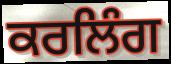
ਕਰਲਿੰਗ